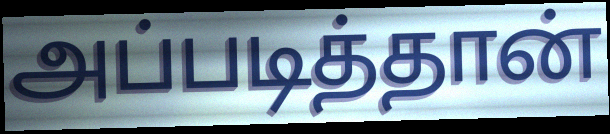
அப்படித்தான்